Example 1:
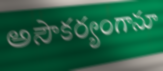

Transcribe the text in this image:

అసౌకర్యంగానూ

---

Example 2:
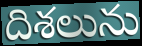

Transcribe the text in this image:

దిశలును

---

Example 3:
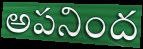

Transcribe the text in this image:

అపనింద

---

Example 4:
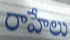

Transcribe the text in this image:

రాహేలు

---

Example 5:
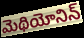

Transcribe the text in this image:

మెథియోనిన్